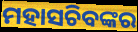
ମହାସଚିବଙ୍କର